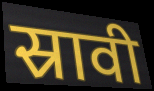
स्रावी